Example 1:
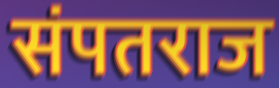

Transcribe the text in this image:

संपतराज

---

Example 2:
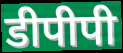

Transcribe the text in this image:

डीपीपी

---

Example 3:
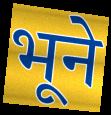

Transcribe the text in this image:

भूने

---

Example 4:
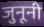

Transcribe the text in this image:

जुनूनी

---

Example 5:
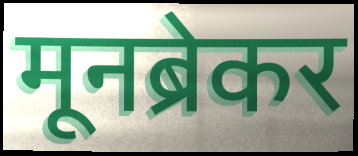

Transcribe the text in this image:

मूनब्रेकर